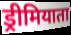
ड्रीमियाता